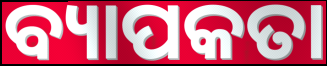
ବ୍ୟାପକତା